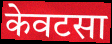
केवटसा